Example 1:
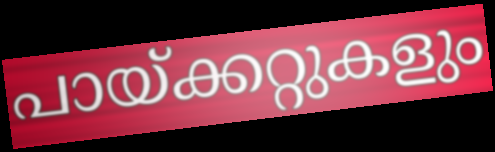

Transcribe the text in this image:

പായ്ക്കറ്റുകളും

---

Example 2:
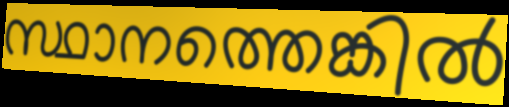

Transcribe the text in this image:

സ്ഥാനത്തെങ്കിൽ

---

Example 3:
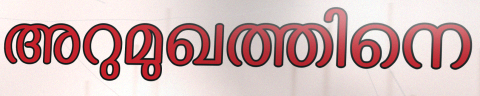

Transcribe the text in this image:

അറുമുഖത്തിനെ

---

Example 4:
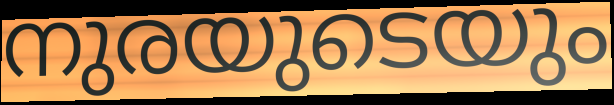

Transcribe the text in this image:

നുരയുടെയും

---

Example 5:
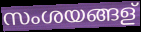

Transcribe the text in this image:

സംശയങ്ങള്